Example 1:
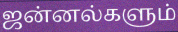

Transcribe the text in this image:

ஜன்னல்களும்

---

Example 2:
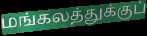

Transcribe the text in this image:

மங்கலத்துக்குப்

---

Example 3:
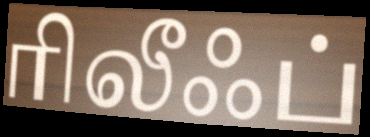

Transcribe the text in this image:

ரிலீஃப்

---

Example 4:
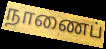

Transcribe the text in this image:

நாணைப்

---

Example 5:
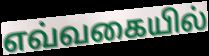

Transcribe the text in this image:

எவ்வகையில்